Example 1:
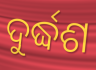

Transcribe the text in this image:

ଦୁର୍ଦ୍ଧଶ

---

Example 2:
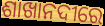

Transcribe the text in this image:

ଶାଖାନଦୀରେ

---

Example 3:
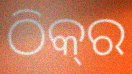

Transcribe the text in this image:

ଠିକ୍‍ର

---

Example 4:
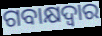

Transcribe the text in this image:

ଗବାକ୍ଷଦ୍ୱାର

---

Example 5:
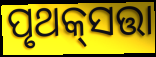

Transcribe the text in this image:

ପୃଥକ୍‌ସତ୍ତା